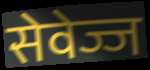
सेवेज्ज